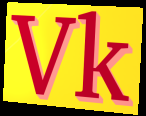
Vk